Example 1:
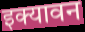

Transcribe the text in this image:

इक्‍यावन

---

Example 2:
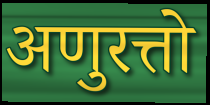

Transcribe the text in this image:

अणुरत्तो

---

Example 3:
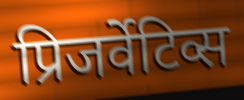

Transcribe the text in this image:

प्रिजर्वेटिव्स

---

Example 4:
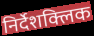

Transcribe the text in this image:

निर्देशक्लिक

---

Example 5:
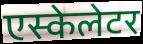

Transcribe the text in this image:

एस्केलेटर